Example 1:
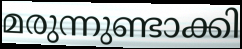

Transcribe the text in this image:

മരുന്നുണ്ടാക്കി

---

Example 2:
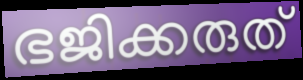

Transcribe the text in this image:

ഭജിക്കരുത്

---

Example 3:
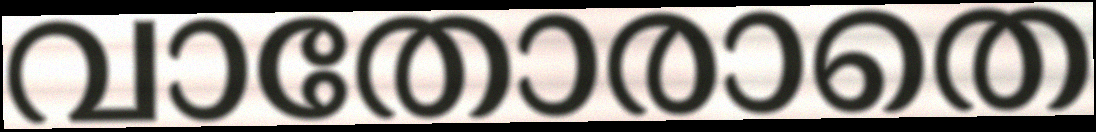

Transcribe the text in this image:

വാതോരാതെ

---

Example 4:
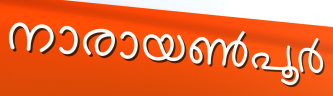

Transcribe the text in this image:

നാരായൺപൂർ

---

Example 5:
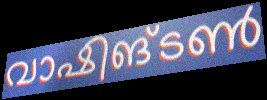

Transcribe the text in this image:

വാഷിങ്ടൺ